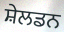
ਸ਼ੇਲਡਨ